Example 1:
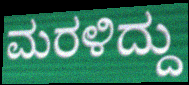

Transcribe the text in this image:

ಮರಳಿದ್ದು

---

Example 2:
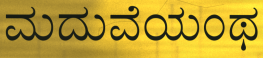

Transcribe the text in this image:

ಮದುವೆಯಂಥ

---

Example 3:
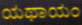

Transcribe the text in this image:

ಯಥಾಯಂ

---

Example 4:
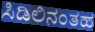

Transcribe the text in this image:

ಸಿಡಿಲಿನಂತಹ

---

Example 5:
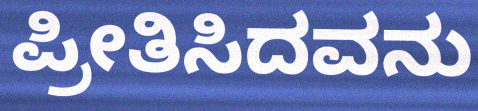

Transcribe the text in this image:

ಪ್ರೀತಿಸಿದವನು